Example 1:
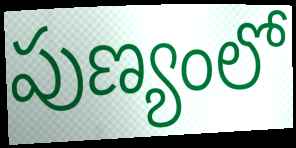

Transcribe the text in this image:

పుణ్యంలో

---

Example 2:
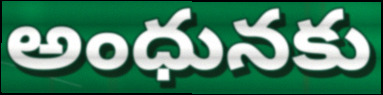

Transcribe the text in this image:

అంధునకు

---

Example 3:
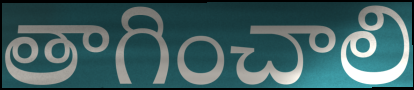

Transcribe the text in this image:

తాగించాలి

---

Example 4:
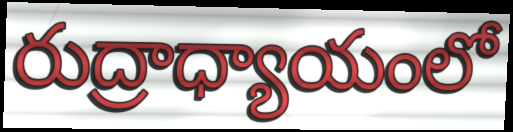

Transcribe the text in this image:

రుద్రాధ్యాయంలో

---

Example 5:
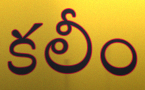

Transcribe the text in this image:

కలీం